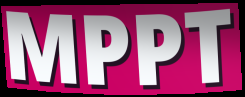
MPPT